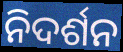
ନିଦର୍ଶନ